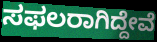
ಸಫಲರಾಗಿದ್ದೇವೆ